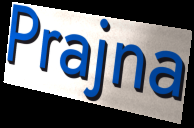
Prajna